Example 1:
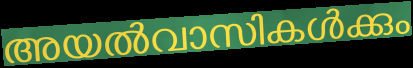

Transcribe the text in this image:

അയൽവാസികൾക്കും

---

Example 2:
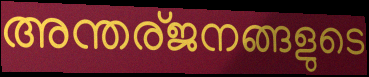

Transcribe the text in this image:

അന്തര്ജനങ്ങളുടെ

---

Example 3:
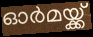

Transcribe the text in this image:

ഓർമയ്ക്ക്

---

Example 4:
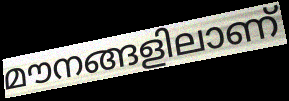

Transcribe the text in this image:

മൗനങ്ങളിലാണ്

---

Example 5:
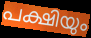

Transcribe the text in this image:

പക്ഷിയും